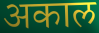
अकाल